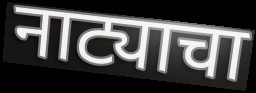
नाट्याचा